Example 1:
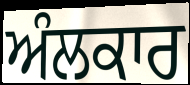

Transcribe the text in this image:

ਅੰਲਕਾਰ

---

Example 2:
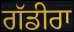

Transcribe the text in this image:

ਗੱਡੀਰਾ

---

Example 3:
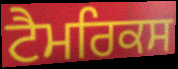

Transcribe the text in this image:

ਟੈਮਰਿਕਸ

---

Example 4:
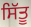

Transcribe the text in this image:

ਸਿੱਤੂ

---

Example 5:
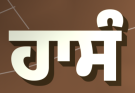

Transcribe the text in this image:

ਹਾਸੰ